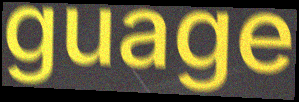
guage